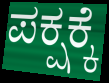
ಪಕ್ಷಕ್ಕೆ